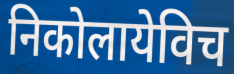
निकोलायेविच